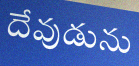
దేవుడును